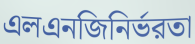
এলএনজিনির্ভরতা